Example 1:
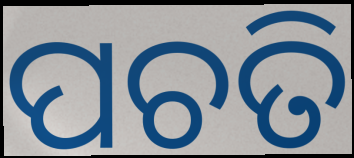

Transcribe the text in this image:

ପଚତି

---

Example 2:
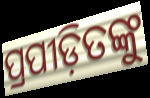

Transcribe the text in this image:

ପ୍ରପୀଡ଼ିତଙ୍କୁ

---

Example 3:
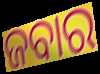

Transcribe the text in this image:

ଜବାର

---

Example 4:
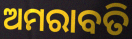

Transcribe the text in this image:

ଅମରାବତି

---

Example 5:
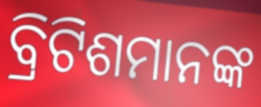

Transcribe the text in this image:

ବ୍ରିଟିଶମାନଙ୍କ